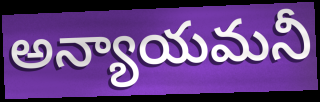
అన్యాయమనీ